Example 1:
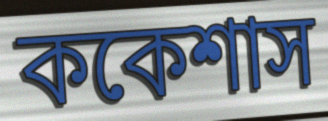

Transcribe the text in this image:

ককেশাস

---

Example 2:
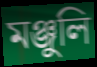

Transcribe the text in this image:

মঞ্জুলি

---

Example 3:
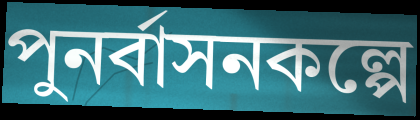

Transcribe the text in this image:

পুনর্বাসনকল্পে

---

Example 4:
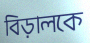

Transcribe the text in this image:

বিড়ালকে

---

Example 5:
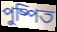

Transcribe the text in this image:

পুষ্পিত